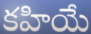
కహియే